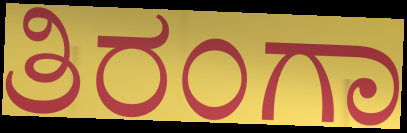
ತಿರಂಗಾ